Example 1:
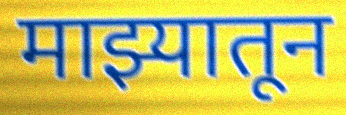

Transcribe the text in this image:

माझ्यातून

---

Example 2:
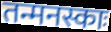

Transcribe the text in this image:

तन्मनस्काः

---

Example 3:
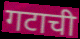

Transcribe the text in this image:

गटाची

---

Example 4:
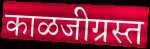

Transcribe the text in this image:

काळजीग्रस्त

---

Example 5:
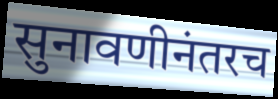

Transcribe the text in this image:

सुनावणीनंतरच